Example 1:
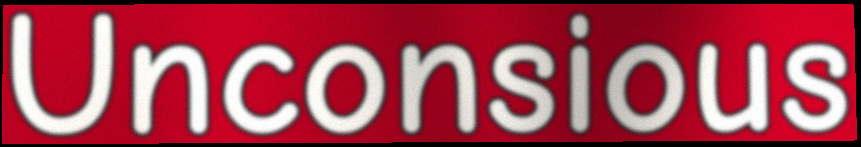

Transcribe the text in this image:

Unconsious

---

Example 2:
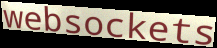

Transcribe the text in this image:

websockets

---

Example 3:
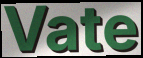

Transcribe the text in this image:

Vate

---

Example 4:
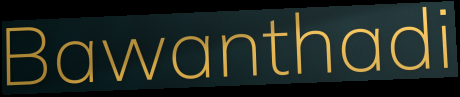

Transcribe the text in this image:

Bawanthadi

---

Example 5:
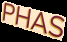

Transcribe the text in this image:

PHAS